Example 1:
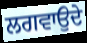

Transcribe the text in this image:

ਲਗਵਾਉਦੇ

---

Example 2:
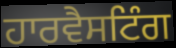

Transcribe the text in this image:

ਹਾਰਵੈਸਟਿੰਗ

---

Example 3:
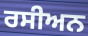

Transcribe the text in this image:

ਰਸੀਅਨ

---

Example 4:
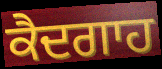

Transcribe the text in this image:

ਕੈਦਗਾਹ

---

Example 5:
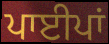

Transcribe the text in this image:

ਪਾਈਪਾਂ